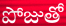
పోజుతో